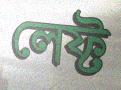
লেফ্ট